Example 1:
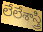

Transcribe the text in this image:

లేలేశాస్త్రి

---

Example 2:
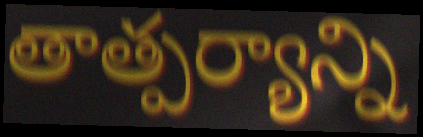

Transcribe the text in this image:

తాత్పర్యాన్ని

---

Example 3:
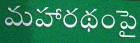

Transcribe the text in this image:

మహారథంపై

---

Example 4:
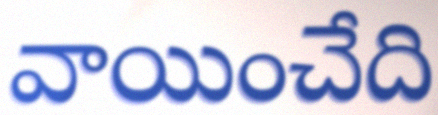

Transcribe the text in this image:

వాయించేది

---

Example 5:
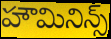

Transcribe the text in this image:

హౌమినిన్స్